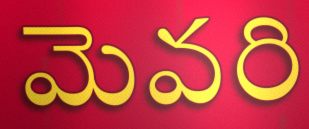
మెవరి